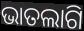
ଭାତଲାଗି